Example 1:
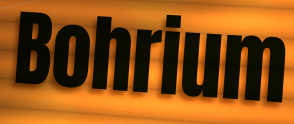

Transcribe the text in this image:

Bohrium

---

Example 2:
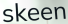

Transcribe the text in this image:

skeen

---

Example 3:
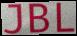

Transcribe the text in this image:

JBL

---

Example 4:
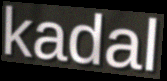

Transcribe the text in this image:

kadal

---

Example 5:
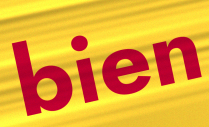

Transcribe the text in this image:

bien